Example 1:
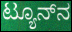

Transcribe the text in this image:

ಟ್ಯೂನ್‌ನ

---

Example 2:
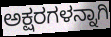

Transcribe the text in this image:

ಅಕ್ಷರಗಳನ್ನಾಗಿ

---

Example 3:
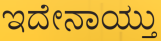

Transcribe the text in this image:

ಇದೇನಾಯ್ತು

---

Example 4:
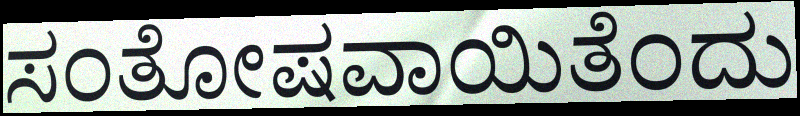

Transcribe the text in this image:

ಸಂತೋಷವಾಯಿತೆಂದು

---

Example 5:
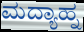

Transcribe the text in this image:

ಮದ್ಯಾಹ್ನ